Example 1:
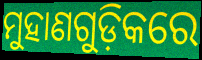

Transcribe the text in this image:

ମୁହାଣଗୁଡ଼ିକରେ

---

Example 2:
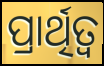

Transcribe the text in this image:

ପ୍ରାର୍ଥିତ୍ୱ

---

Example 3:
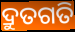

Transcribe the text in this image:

ଦ୍ରୁତଗତି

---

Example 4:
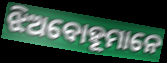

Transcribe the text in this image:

ଝିଅବୋହୂମାନେ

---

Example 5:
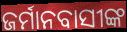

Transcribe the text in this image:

ଜର୍ମାନବାସୀଙ୍କ